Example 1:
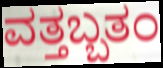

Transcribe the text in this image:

ವತ್ತಬ್ಬತಂ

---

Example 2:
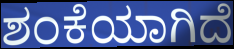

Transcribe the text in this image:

ಶಂಕೆಯಾಗಿದೆ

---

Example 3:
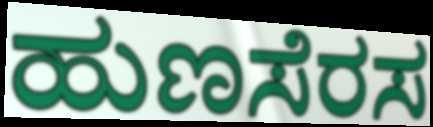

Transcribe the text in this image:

ಹುಣಸೆರಸ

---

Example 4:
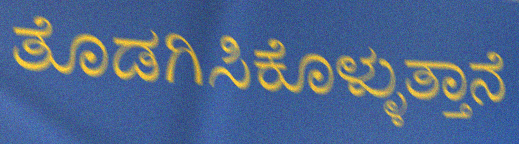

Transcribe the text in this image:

ತೊಡಗಿಸಿಕೊಳ್ಳುತ್ತಾನೆ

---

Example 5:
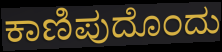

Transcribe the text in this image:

ಕಾಣಿಪುದೊಂದು